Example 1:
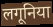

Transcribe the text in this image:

लगूनिया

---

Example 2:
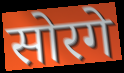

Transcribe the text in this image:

सोरगे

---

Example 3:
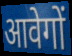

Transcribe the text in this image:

आवेगों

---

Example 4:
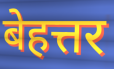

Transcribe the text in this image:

बेहत्तर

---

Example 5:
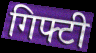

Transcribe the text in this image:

गिफ्टी